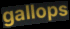
gallops